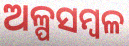
ଅଳ୍ପସମ୍ବଳ